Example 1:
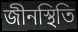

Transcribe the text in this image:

জীনস্থিতি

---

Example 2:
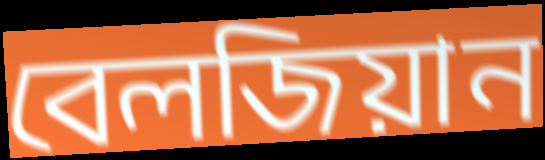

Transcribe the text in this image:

বেলজিয়ান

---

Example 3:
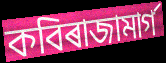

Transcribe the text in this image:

কবিৰাজামাৰ্গ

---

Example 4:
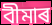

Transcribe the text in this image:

বীমাৰ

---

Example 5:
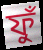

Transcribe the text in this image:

ফুঁ